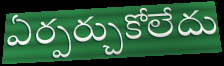
ఏర్పర్చుకోలేదు